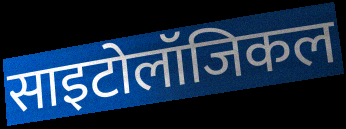
साइटोलॉजिकल